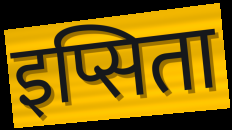
इप्सिता